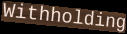
Withholding